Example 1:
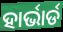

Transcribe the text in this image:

ହାର୍ଭାର୍ଡ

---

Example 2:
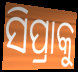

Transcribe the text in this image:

ସିପ୍ରାକୁ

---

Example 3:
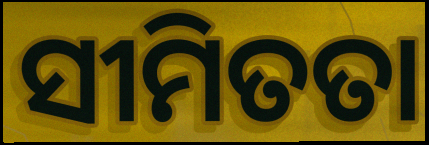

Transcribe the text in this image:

ସୀମିତତା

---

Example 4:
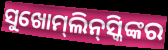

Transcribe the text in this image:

ସୁଖୋମ୍‌ଲିନ୍‌ସ୍କିଙ୍କର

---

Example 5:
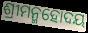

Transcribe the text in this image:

ଶ୍ରୀମନ୍ମହୋଦୟ